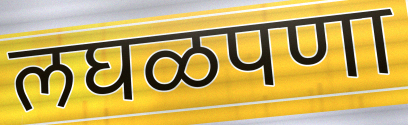
लघळपणा